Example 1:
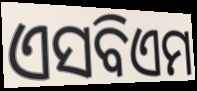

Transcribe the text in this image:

ଏସବିଏମ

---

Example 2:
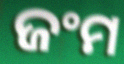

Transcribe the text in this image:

ଜଂମ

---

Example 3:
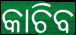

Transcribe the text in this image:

କାଚିବ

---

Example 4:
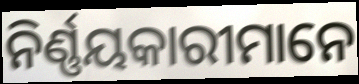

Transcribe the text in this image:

ନିର୍ଣ୍ଣୟକାରୀମାନେ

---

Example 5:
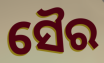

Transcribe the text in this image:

ସୈର